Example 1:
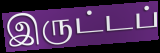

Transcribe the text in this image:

இருட்டப்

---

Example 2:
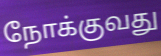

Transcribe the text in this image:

நோக்குவது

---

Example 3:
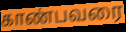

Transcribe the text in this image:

காண்பவரை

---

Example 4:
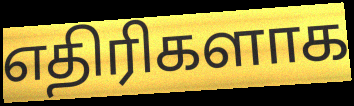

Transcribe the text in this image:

எதிரிகளாக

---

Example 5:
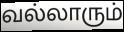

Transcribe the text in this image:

வல்லாரும்